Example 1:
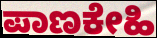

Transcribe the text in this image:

ಪಾಣಕೇಹಿ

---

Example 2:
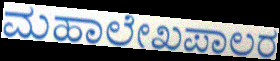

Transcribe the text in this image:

ಮಹಾಲೇಖಪಾಲರ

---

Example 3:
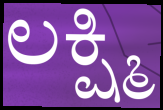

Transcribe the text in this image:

ಲಕ್ಷ್ಮಿ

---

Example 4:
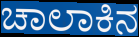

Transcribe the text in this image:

ಚಾಲಾಕಿನ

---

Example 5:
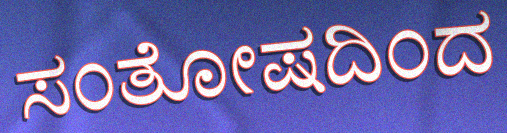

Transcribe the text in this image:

ಸಂತೋಷದಿಂದ